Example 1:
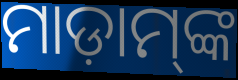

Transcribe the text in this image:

ମାଡ଼ାମ୍‌ଙ୍କ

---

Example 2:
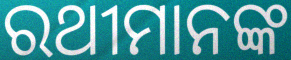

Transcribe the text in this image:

ରଥୀମାନଙ୍କ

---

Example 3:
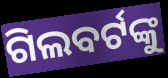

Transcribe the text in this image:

ଗିଲବର୍ଟଙ୍କୁ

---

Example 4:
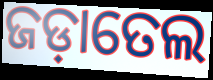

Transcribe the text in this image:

ଜଡ଼ାତେଲ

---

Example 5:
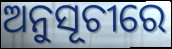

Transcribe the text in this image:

ଅନୁସୂଚୀରେ